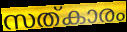
സത്കാരം